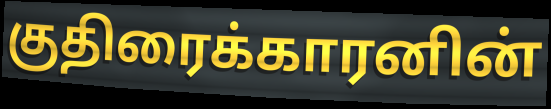
குதிரைக்காரனின்